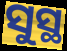
ସୁସ୍ଥ